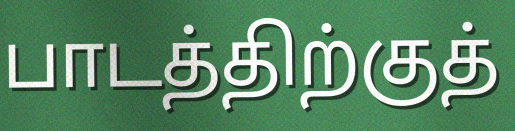
பாடத்திற்குத்